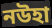
নউহা